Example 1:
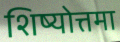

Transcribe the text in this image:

शिष्योत्तमा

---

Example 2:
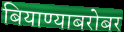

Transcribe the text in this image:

बियाण्याबरोबर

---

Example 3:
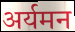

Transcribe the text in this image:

अर्यमन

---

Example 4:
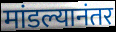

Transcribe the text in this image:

मांडल्यानंतर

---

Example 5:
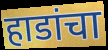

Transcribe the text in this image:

हाडांचा